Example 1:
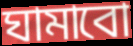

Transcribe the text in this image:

ঘামাবো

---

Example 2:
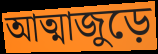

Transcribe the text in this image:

আত্মাজুড়ে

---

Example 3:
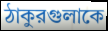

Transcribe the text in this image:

ঠাকুরগুলাকে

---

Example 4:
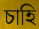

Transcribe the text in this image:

চাহি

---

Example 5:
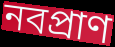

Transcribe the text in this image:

নবপ্রাণ